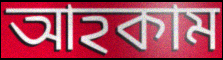
আহকাম